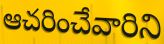
ఆచరించేవారిని